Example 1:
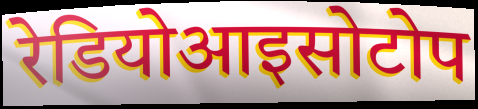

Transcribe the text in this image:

रेडियोआइसोटोप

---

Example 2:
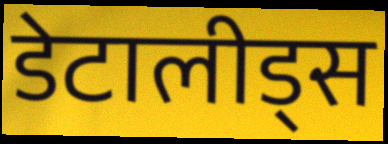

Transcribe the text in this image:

डेटालीड्स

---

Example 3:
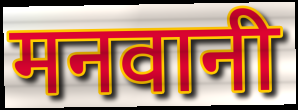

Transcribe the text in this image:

मनवानी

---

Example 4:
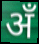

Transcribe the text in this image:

अँ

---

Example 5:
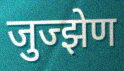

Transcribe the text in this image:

जुज्झेण